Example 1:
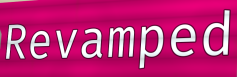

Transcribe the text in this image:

Revamped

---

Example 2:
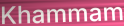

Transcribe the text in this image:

Khammam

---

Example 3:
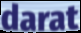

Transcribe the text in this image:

darat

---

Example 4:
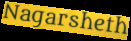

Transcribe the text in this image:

Nagarsheth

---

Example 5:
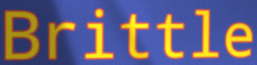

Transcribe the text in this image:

Brittle